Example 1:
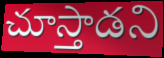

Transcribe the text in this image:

చూస్తాడని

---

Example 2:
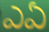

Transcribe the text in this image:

ఎఏ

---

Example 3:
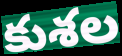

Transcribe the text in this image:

కుశల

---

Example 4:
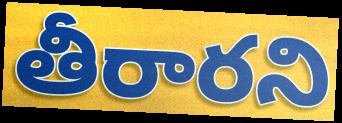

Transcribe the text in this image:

తీరారని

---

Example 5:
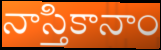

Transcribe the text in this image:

నాస్తికానాం